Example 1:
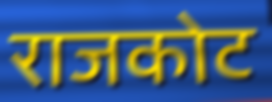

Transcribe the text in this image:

राजकोट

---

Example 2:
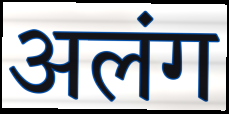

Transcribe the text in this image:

अलंग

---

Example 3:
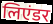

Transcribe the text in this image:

लिएंडर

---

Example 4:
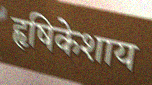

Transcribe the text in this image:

हृषिकेशाय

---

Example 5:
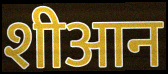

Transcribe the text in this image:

शीआन